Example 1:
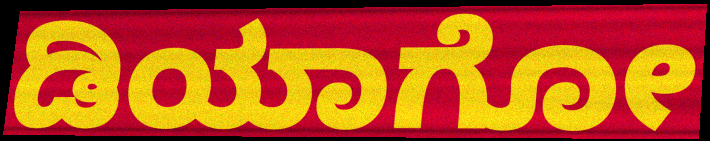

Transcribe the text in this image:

ಡಿಯಾಗೋ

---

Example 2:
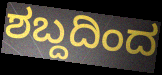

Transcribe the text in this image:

ಶಬ್ದದಿಂದ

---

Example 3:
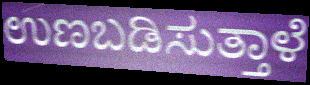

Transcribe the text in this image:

ಉಣಬಡಿಸುತ್ತಾಳೆ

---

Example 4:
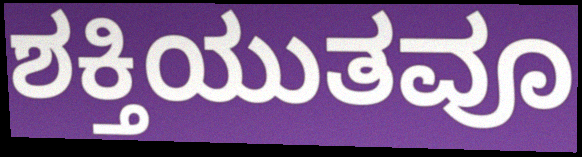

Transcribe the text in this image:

ಶಕ್ತಿಯುತವೂ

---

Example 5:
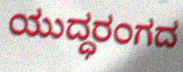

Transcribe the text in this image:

ಯುದ್ಧರಂಗದ